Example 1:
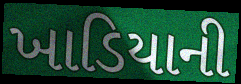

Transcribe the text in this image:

ખાડિયાની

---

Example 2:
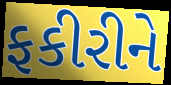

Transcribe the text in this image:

ફકીરીને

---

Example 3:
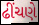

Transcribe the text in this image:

ઢીંચણે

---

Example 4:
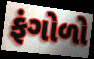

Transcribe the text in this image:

ફંગોળો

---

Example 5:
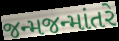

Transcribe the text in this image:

જન્મજન્માંતરે